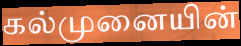
கல்முனையின்